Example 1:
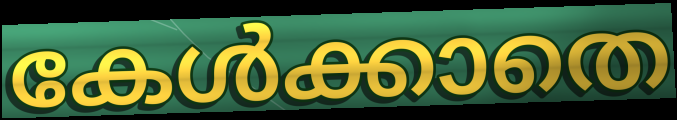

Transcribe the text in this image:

കേൾക്കാതെ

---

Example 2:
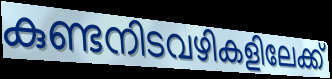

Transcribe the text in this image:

കുണ്ടനിടവഴികളിലേക്ക്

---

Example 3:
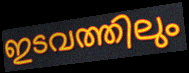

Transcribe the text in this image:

ഇടവത്തിലും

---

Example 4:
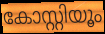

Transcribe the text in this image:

കോസ്റ്റിയൂം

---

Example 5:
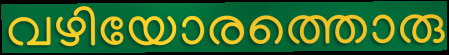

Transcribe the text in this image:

വഴിയോരത്തൊരു